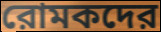
রোমকদের